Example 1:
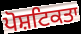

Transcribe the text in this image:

ਪੋਸ਼ਟਿਕਤਾ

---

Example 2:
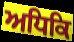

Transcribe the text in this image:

ਅਧਿਕਿ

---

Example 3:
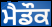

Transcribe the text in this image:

ਮੈਡੌਕ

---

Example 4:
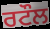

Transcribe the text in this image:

ਰਟੌਲ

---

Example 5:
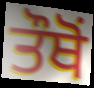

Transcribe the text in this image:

ਤੌਥੋਂ